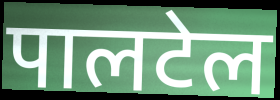
पालटेल